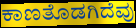
ಕಾಣತೊಡಗಿದೆವು